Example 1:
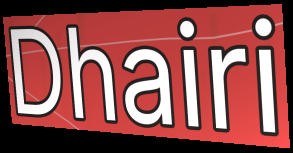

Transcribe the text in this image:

Dhairi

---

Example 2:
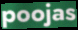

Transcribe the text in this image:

poojas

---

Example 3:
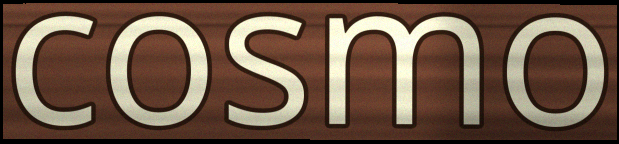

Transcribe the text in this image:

cosmo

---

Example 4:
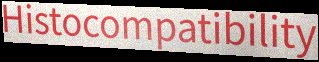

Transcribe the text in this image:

Histocompatibility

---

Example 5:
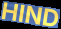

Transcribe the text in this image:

HIND